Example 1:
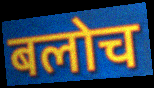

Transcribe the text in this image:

बलोच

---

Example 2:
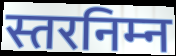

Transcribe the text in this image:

स्तरनिम्न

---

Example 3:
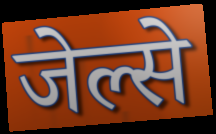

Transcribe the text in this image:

जेल्से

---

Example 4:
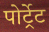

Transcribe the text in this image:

पोर्ट्रेट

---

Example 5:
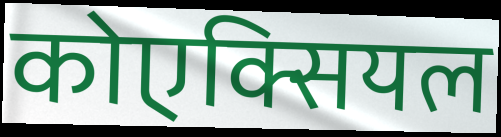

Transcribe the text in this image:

कोएक्सियल